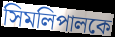
সিমলিপালকে